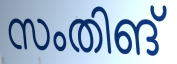
സംതിങ്